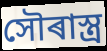
সৌৰাস্ত্ৰ